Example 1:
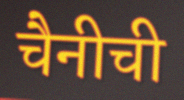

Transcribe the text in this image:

चैनीची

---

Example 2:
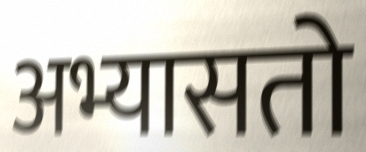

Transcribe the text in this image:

अभ्यासतो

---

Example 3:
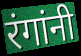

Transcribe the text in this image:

रंगांनी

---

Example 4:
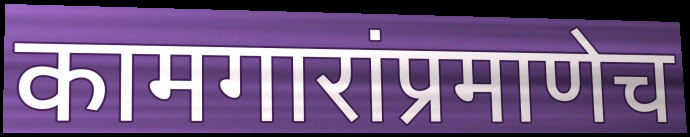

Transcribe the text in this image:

कामगारांप्रमाणेच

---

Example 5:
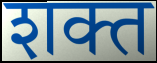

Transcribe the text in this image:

शक्त